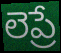
లెప్రే